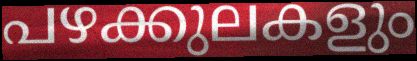
പഴക്കുലകളും